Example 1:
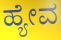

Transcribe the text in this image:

ಹ್ಯೇವ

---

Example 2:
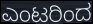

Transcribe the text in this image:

ಎಂಟರಿಂದ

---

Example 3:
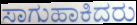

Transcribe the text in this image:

ಸಾಗುಹಾಕಿದರು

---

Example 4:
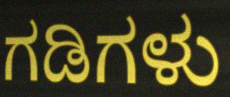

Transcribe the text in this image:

ಗಡಿಗಳು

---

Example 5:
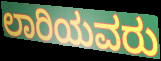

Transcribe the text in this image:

ಲಾರಿಯವರು